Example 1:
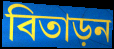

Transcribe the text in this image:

বিতাড়ন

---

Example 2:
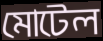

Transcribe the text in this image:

মোটেল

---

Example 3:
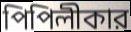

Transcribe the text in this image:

পিপিলীকার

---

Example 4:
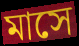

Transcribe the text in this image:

মাসে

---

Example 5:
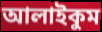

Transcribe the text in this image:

আলাইকুম